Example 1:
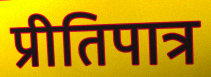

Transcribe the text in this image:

प्रीतिपात्र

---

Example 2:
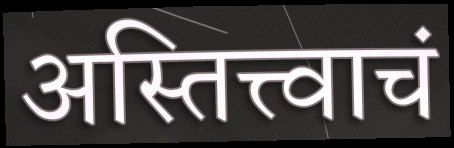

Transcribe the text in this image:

अस्तित्त्वाचं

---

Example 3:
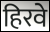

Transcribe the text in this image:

हिरवे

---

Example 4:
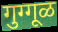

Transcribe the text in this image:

गुग्गूळ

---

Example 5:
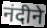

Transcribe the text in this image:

नंदीने